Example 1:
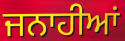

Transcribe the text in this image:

ਜਨਾਹੀਆਂ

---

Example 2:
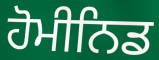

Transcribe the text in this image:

ਹੋਮੀਨਿਡ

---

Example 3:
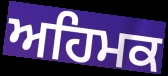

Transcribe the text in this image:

ਅਹਿਮਕ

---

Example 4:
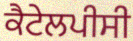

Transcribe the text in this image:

ਕੈਟੇਲਪੀਸੀ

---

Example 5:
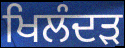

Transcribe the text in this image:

ਖਿਲੰਦੜ